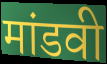
मांडवी